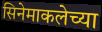
सिनेमाकलेच्या